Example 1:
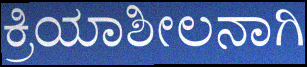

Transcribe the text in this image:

ಕ್ರಿಯಾಶೀಲನಾಗಿ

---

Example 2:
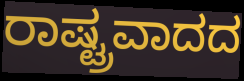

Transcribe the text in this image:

ರಾಷ್ಟ್ರವಾದದ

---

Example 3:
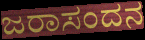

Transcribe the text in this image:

ಜರಾಸಂದನ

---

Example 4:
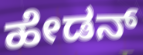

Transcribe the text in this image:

ಹೇಡನ್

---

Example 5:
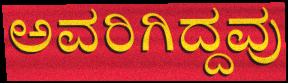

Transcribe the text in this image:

ಅವರಿಗಿದ್ದವು